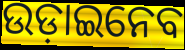
ଉଡ଼ାଇନେବ